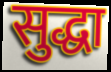
सुद्धा